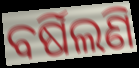
ବର୍ଷିଲଣି